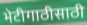
भेटीगाठीसाठी